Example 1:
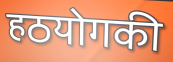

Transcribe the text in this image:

हठयोगकी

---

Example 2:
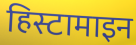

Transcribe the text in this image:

हिस्टामाइन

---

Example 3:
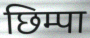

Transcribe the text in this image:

छिम्पा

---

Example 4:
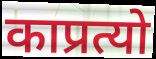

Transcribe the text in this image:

काप्रत्यो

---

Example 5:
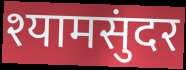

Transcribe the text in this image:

श्यामसुंदर